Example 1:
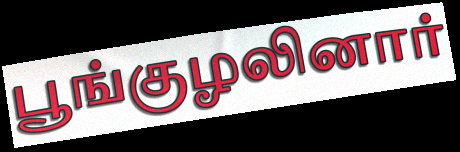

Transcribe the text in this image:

பூங்குழலினார்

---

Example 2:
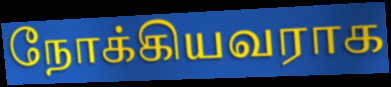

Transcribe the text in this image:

நோக்கியவராக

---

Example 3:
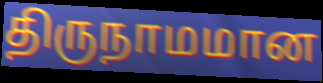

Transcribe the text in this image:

திருநாமமான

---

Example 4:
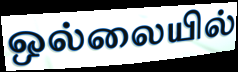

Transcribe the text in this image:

ஒல்லையில்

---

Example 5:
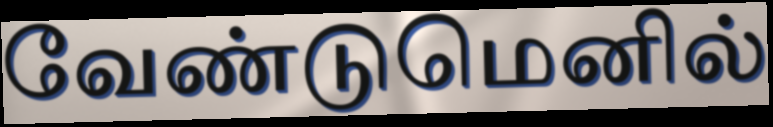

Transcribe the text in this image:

வேண்டுமெனில்